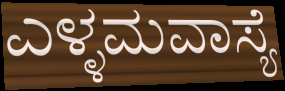
ಎಳ್ಳಮವಾಸ್ಯೆ